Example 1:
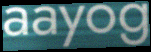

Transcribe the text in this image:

aayog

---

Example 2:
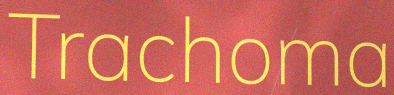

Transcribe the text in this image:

Trachoma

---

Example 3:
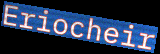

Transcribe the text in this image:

Eriocheir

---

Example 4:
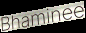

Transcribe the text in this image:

Bhaminee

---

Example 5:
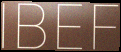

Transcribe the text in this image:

IBEF